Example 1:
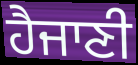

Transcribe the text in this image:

ਹੈਜਾਣੀ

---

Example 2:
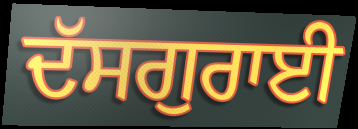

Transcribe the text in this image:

ਦੱਸਗੁਰਾਈ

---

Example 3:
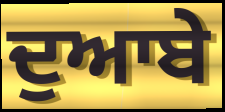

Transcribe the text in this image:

ਦੁਆਬੇ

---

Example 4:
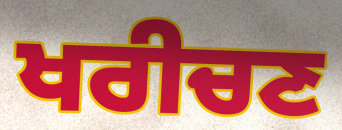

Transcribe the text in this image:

ਖਰੀਚਣ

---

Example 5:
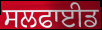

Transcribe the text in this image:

ਸਲਫਾਈਡ